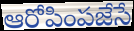
ఆరోపింపజేసే